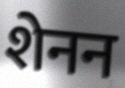
शेनन